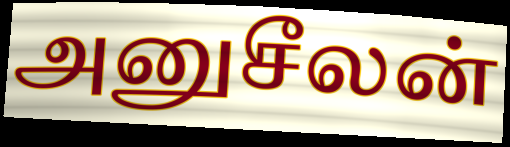
அனுசீலன்